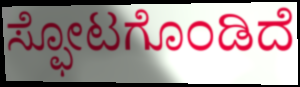
ಸ್ಫೋಟಗೊಂಡಿದೆ